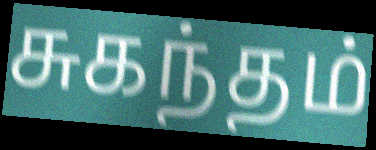
சுகந்தம்